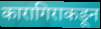
कारागिराकडून